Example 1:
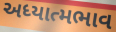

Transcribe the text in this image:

અધ્યાત્મભાવ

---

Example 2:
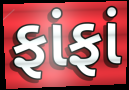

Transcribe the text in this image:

ફાંફાં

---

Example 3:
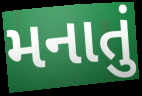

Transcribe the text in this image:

મનાતું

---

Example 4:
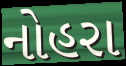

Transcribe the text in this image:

નોહરા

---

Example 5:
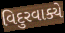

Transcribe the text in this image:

વિદુરવાક્યે